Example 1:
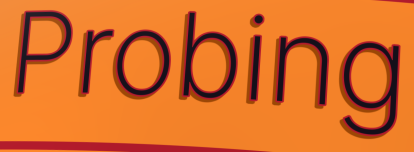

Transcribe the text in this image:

Probing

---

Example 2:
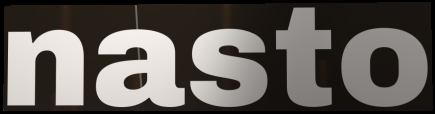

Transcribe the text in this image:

nasto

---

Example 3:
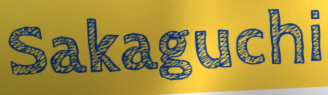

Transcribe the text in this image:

Sakaguchi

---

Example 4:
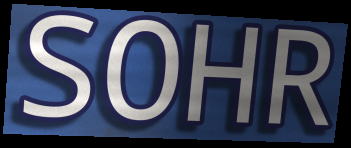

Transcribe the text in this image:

SOHR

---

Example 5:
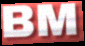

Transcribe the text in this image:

BM